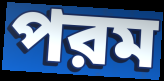
পরম